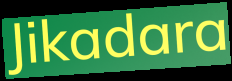
Jikadara